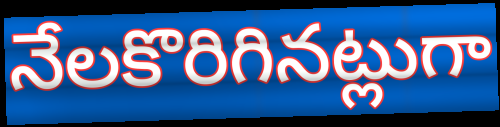
నేలకొరిగినట్లుగా